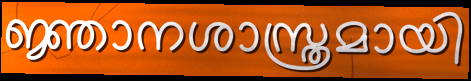
ജ്ഞാനശാസ്ത്രമായി